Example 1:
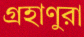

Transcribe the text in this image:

গ্রহাণুরা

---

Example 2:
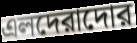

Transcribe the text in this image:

এলদেরাদোর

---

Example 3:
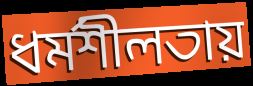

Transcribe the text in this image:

ধর্মশীলতায়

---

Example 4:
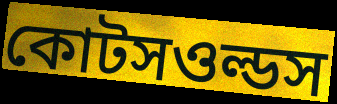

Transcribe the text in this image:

কোটসওল্ডস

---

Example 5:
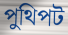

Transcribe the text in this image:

পুথিপট